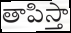
తాపిస్తా